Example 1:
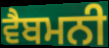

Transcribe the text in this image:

ਵੈਬਮਨੀ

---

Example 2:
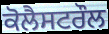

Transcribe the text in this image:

ਕੋਲੈਸਟਰੌਲ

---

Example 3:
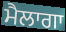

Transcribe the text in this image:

ਮੈਲਾਗਾ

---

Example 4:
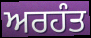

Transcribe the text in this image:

ਅਰਹੰਤ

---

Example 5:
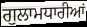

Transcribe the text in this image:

ਗੁਲਾਮਧਾਰੀਆਂ